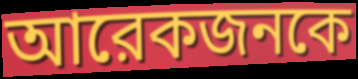
আরেকজনকে